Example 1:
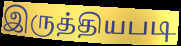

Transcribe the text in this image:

இருத்தியபடி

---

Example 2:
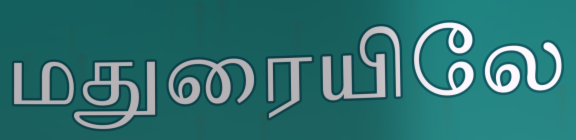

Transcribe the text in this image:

மதுரையிலே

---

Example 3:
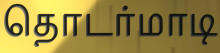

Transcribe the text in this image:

தொடர்மாடி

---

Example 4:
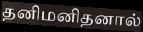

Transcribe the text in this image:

தனிமனிதனால்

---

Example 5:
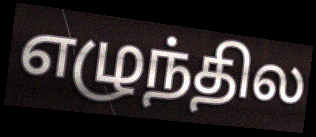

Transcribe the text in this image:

எழுந்தில